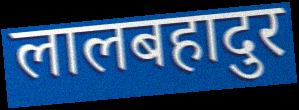
लालबहादुर